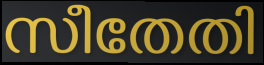
സീതേതി